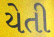
યેતી